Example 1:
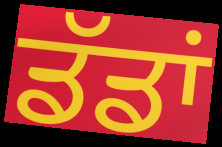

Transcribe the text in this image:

ਡੱਡਾਂ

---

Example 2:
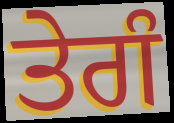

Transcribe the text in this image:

ਤੇਗੰ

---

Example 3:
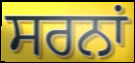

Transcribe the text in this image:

ਸਰਨਾਂ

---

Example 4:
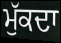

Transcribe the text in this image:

ਮੁੱਕਦਾ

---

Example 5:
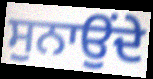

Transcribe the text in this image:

ਸੁਨਾਉਂਦੇ